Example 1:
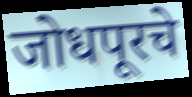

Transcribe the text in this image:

जोधपूरचे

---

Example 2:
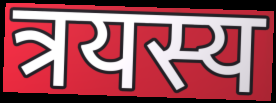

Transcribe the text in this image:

त्रयस्य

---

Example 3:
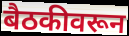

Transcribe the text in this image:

बैठकीवरून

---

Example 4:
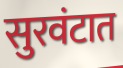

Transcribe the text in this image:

सुरवंटात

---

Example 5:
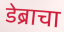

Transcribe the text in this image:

डेब्राचा